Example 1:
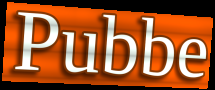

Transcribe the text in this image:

Pubbe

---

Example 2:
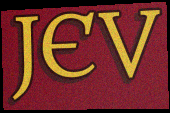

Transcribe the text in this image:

JEV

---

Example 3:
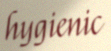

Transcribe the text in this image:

hygienic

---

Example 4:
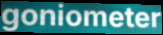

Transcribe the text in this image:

goniometer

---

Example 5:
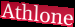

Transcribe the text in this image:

Athlone